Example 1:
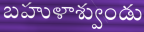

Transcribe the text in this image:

బహుళాశ్వుండు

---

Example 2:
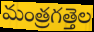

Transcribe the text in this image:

మంత్రగత్తెల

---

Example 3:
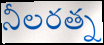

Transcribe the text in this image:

నీలరత్న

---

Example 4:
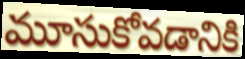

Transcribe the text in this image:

మూసుకోవడానికి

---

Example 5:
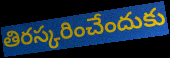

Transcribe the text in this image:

తిరస్కరించేందుకు